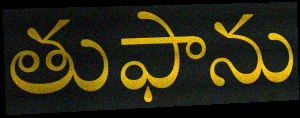
తుఫాను